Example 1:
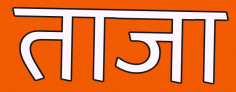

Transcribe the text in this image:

ताजा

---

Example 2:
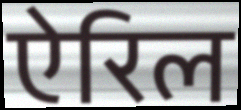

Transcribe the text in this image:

ऐरिल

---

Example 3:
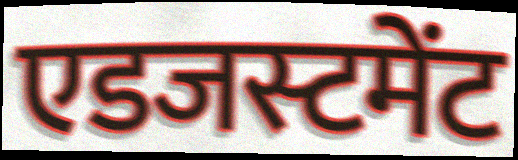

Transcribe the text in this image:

एडजस्‍टमेंट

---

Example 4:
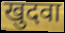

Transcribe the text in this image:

खुदवा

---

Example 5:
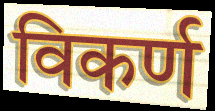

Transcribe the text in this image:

विकर्ण